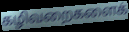
கழிவறைகளைக்